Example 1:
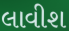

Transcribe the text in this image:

લાવીશ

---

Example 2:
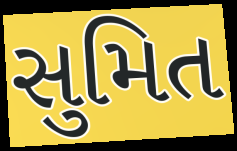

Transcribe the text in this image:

સુમિત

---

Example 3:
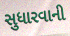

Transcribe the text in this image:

સુધારવાની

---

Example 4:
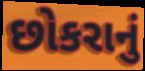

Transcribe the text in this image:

છોકરાનું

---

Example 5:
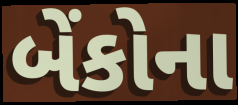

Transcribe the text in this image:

બેંકોના